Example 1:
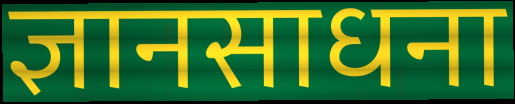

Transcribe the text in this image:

ज्ञानसाधना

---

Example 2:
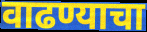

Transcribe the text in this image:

वाढण्याचा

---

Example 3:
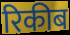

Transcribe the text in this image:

रिकीब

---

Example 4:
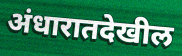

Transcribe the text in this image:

अंधारातदेखील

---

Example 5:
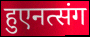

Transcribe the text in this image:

हुएनत्संग